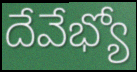
దేవేభ్యో